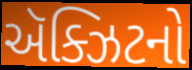
ઍક્ઝિટનો